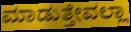
ಮಾಡುತ್ತೇವಲ್ಲಾ